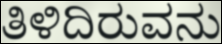
ತಿಳಿದಿರುವನು